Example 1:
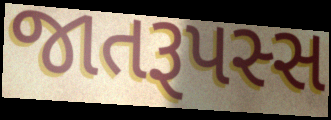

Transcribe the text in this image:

જાતરૂપસ્સ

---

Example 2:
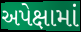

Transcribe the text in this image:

અપેક્ષામાં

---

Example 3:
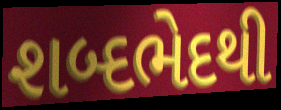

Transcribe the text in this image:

શબ્દભેદથી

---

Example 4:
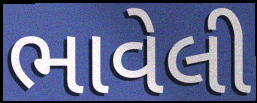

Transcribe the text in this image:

ભાવેલી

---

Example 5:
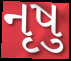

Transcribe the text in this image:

નૃષુ